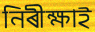
নিৰীক্ষাই